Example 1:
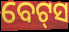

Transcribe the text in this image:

ବେଟ୍‍ସ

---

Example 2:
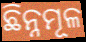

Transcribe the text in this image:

ଛିନ୍ନମୂଳ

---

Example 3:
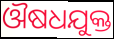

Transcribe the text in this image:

ଔଷଧଯୁକ୍ତ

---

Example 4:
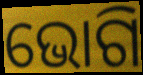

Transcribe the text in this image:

ଭୋଗି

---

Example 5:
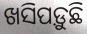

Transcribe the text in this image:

ଖସିପଡ଼ୁଛି